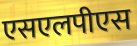
एसएलपीएस